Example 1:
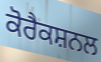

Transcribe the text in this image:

ਕੋਰੈਕਸ਼ਨਲ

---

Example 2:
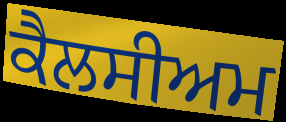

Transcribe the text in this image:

ਕੈਲਸੀਅਮ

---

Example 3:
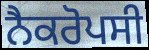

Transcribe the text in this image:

ਨੈਕਰੋਪਸੀ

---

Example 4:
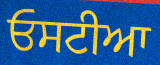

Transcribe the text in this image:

ਓਸਟੀਆ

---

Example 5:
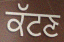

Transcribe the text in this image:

ਕੱਟਣ